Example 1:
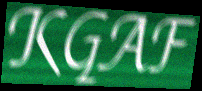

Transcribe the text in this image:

KGAF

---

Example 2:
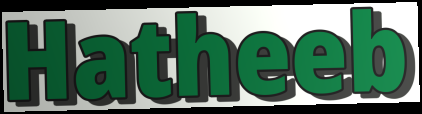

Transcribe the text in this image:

Hatheeb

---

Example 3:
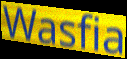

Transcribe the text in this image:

Wasfia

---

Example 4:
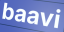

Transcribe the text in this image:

baavi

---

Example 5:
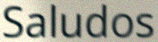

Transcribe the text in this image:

Saludos